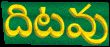
దిటవు